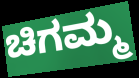
ಚಿಗಮ್ಮ